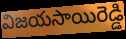
విజయసాయిరెడ్డి